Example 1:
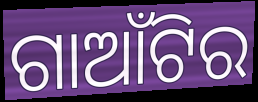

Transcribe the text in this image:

ଗାଆଁଟିର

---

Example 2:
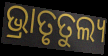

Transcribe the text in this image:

ଭ୍ରାତୃତୁଲ୍ୟ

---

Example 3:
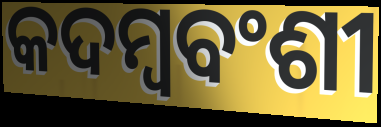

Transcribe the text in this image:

କଦମ୍ବବଂଶୀ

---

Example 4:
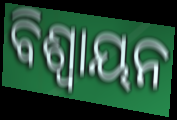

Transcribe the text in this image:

ବିଶ୍ୱାୟନ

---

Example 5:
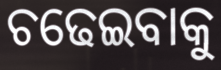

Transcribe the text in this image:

ଚଢେଇବାକୁ